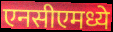
एनसीएमध्ये